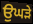
ਉਘੜੇ